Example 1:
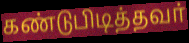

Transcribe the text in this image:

கண்டுபிடித்தவர்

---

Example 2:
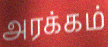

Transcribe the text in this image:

அரக்கம்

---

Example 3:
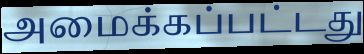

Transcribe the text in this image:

அமைக்கப்பட்டது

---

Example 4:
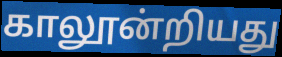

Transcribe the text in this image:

காலூன்றியது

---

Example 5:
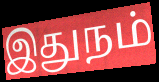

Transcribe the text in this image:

இதுநம்